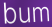
bum